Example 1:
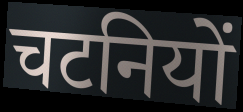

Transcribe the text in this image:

चटनियों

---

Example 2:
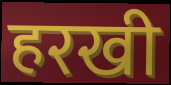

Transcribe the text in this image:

हरखी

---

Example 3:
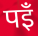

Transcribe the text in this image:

पइँ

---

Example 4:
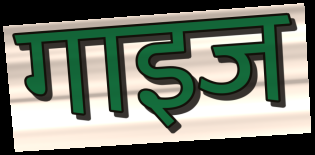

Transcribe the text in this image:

गाइज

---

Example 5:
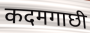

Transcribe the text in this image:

कदमगाछी